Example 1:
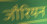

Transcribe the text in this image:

जौरियन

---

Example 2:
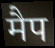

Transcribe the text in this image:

मैप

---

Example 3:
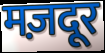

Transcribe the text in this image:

मज़दूर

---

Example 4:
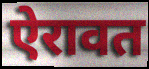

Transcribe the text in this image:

ऐरावत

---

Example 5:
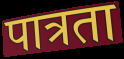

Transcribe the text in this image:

पात्रता